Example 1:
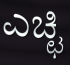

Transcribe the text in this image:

ಎಚ್ಟಿ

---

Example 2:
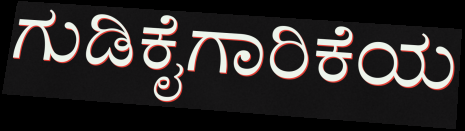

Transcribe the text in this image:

ಗುಡಿಕೈಗಾರಿಕೆಯ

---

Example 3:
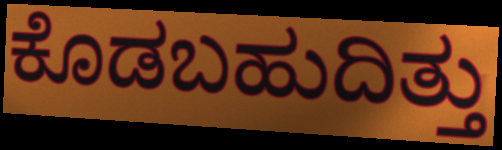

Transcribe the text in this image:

ಕೊಡಬಹುದಿತ್ತು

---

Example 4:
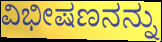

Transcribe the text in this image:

ವಿಭೀಷಣನನ್ನು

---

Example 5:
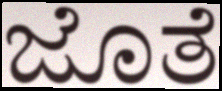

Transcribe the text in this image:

ಜೊತೆ